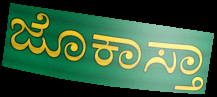
ಜೊಕಾಸ್ತಾ